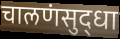
चालणंसुद्धा